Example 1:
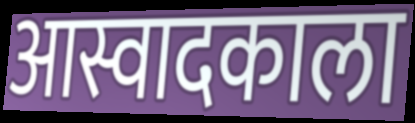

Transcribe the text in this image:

आस्वादकाला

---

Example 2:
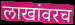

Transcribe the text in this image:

लाखांवरच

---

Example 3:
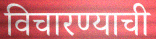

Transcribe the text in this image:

विचारण्याची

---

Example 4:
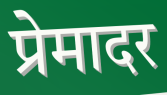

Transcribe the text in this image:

प्रेमादर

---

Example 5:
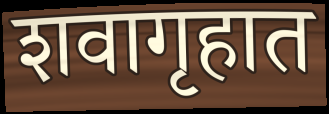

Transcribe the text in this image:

शवागृहात